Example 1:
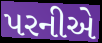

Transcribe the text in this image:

પરનીએ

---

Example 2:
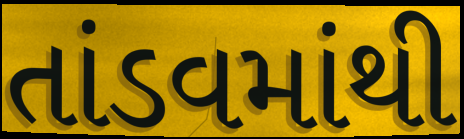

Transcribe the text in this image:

તાંડવમાંથી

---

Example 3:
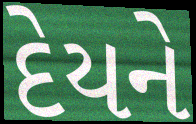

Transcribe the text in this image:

દેયને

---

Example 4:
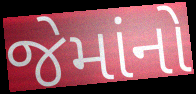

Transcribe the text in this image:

જેમાંનો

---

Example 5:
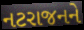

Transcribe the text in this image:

નટરાજનને